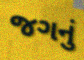
જગનું